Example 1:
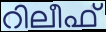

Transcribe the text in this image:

റിലീഫ്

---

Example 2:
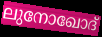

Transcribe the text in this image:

ലുനോഖോദ്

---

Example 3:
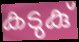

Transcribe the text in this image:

കടുകു്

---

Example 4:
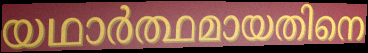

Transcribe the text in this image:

യഥാർത്ഥമായതിനെ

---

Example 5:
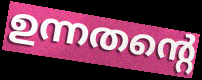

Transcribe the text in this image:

ഉന്നതന്റെ